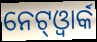
ନେଟ୍ଓ୍ବାର୍କ